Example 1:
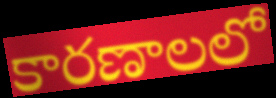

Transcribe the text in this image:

కారణాలలో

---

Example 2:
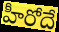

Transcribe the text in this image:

హీరోదే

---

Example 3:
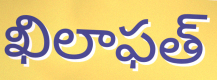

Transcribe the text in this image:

ఖిలాఫత్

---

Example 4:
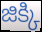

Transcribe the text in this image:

జిక్కి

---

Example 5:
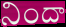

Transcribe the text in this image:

నిందా